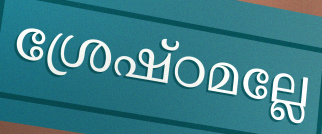
ശ്രേഷ്ഠമല്ലേ